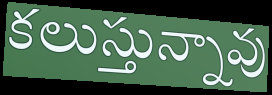
కలుస్తున్నావు